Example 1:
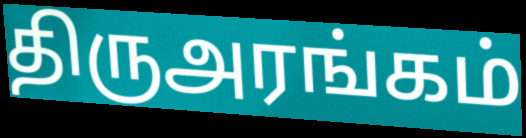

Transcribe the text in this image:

திருஅரங்கம்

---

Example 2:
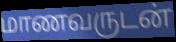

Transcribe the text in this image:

மாணவருடன்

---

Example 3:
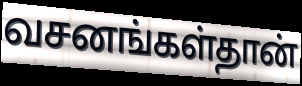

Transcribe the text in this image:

வசனங்கள்தான்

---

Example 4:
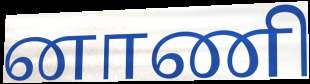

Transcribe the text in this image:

னாணி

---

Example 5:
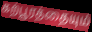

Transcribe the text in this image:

கற்பூரத்தையும்